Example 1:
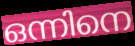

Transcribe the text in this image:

ഒന്നിനെ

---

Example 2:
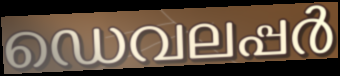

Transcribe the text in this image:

ഡെവലപ്പർ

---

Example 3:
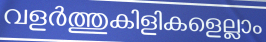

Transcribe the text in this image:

വളർത്തുകിളികളെല്ലാം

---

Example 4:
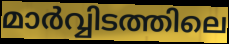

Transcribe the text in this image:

മാർവ്വിടത്തിലെ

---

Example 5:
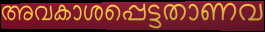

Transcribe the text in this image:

അവകാശപ്പെട്ടതാണവ